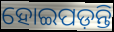
ହୋଇପଡ଼ନ୍ତି